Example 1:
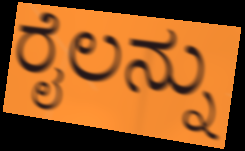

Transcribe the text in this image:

ರೈಲನ್ನು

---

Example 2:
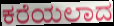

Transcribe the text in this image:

ಕರೆಯಲಾದ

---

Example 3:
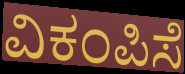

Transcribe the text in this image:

ವಿಕಂಪಿಸೆ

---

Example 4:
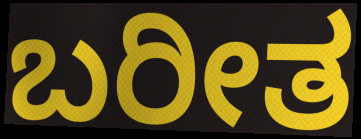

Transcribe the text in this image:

ಬರೀತ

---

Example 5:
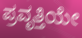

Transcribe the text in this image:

ಪ್ರವೃತ್ತಿಯೇ